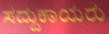
ಸದ್ದುಕಾಯರು